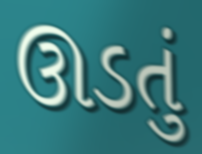
ઊડતું